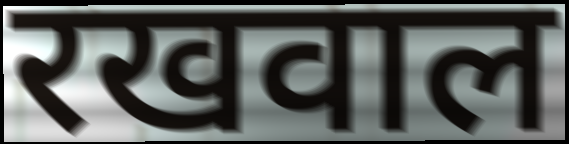
रखवाल